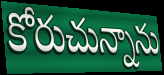
కోరుచున్నాను